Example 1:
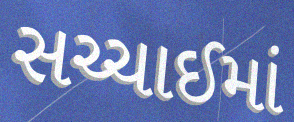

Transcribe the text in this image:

સચ્ચાઈમાં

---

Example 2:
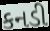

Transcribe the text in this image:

કનડી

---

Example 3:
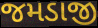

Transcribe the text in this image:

જમડાજી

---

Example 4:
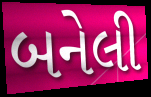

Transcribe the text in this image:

બનેલી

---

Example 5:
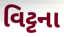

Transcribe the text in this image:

વિટ્ટના